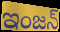
ఇంజన్